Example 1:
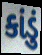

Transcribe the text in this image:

કાંડું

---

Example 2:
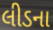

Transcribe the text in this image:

લીડના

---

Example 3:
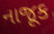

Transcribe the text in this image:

નાજૂક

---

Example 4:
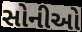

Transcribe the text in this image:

સોનીઓ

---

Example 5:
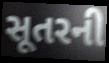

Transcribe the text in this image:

સૂતરની